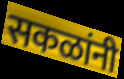
सकळांनी